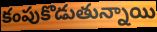
కంపుకొడుతున్నాయి